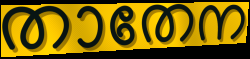
താതേന